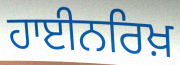
ਹਾਈਨਰਿਖ਼